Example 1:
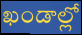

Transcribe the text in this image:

ఖండాల్లో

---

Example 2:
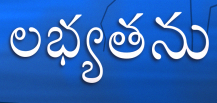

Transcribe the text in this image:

లభ్యతను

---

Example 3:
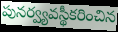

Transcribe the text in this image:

పునర్వ్యవస్థీకరించిన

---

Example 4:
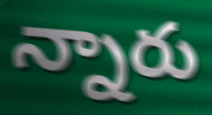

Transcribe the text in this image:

న్నారు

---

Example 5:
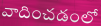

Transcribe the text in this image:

వాదించడంలో